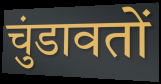
चुंडावतों